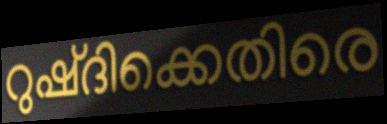
റുഷ്ദിക്കെതിരെ